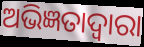
ଅଭିଜ୍ଞତାଦ୍ଵାରା